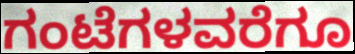
ಗಂಟೆಗಳವರೆಗೂ